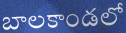
బాలకాండలో